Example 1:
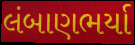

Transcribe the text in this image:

લંબાણભર્યા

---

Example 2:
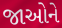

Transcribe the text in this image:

જાઓને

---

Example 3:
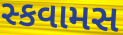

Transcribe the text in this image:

સ્કવામસ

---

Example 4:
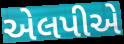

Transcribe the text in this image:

એલપીએ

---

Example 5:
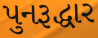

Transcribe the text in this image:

પુનરૂદ્ધાર